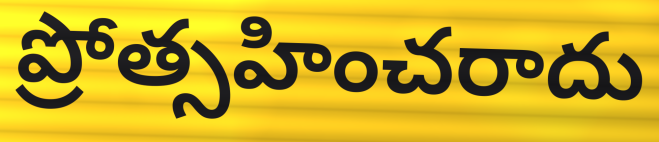
ప్రోత్సహించరాదు